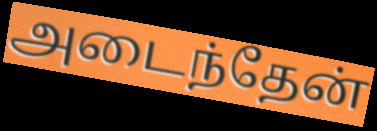
அடைந்தேன்